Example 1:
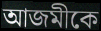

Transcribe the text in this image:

আজমীকে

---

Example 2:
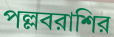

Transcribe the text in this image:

পল্লবরাশির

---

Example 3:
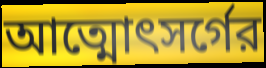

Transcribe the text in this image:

আত্মোৎসর্গের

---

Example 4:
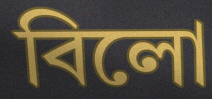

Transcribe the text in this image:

বিলো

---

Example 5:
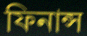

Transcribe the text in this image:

ফিনান্স